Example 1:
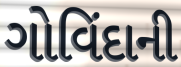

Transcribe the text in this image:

ગોવિંદાની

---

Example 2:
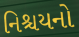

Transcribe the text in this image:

નિશ્ચયનો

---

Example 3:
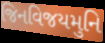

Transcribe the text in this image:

જિનવિજયમુનિ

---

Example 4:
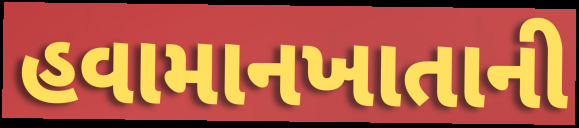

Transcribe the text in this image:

હવામાનખાતાની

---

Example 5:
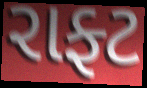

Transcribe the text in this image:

રાફ્ટ